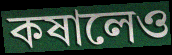
কষালেও